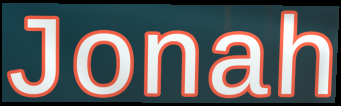
Jonah